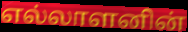
எல்லாளனின்